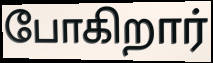
போகிறார்